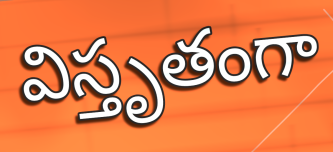
విస్తృతంగా